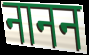
नानन